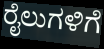
ರೈಲುಗಳಿಗೆ